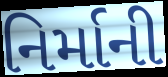
નિર્માની